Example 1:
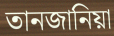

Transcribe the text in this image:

তানজানিয়া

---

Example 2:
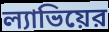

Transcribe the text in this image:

ল্যাভিয়ের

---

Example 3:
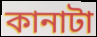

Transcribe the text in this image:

কানাটা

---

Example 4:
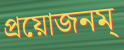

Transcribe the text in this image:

প্রয়োজনম্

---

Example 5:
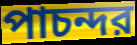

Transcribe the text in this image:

পাচন্দর